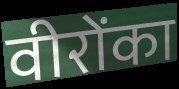
वीरोंका